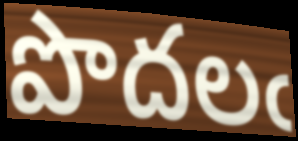
పొదలఁ